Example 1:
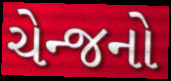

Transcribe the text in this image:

ચેન્જનો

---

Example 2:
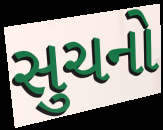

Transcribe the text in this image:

સુચનો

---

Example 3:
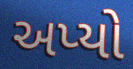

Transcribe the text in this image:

અપ્યો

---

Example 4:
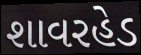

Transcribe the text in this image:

શાવરહેડ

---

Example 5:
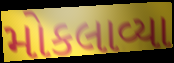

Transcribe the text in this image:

મોકલાવ્યા